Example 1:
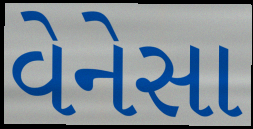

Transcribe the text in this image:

વેનેસા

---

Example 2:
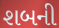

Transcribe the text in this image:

શબની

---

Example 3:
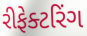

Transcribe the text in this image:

રીફેક્ટરિંગ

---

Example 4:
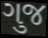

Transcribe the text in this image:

ગુજ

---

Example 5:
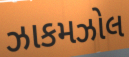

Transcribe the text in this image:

ઝાકમઝોલ